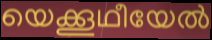
യെക്കൂഥീയേൽ